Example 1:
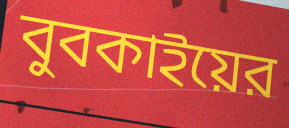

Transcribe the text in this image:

বুবকাইয়ের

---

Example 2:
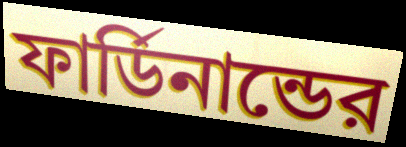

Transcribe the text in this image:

ফার্ডিনান্ডের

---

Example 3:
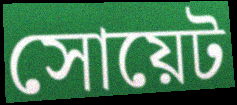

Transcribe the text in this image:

সোয়েট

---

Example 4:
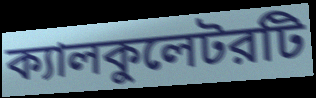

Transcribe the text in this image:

ক্যালকুলেটরটি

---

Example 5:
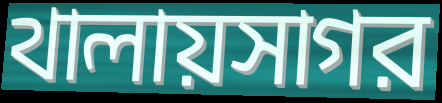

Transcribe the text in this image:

থালায়সাগর